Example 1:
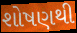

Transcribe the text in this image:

શોષણથી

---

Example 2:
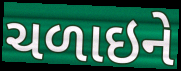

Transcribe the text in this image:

ચળાઇને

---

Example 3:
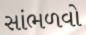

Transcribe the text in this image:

સાંભળવો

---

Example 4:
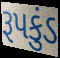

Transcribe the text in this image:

રૂપકુંડ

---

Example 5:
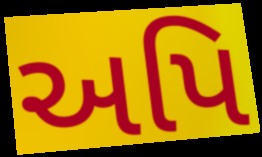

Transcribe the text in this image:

અપિ